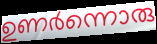
ഉണർന്നൊരു